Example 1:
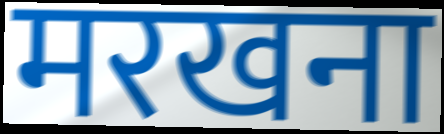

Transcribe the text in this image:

मरखना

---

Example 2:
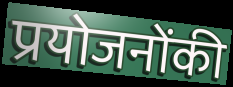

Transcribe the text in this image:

प्रयोजनोंकी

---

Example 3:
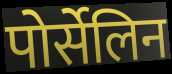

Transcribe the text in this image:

पोर्सेलिन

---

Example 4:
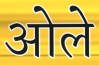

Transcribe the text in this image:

ओले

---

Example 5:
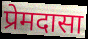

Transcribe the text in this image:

प्रेमदासा